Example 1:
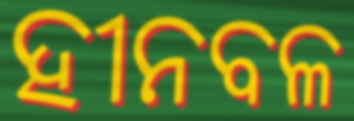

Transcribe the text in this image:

ହୀନବଳ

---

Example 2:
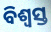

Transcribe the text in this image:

ବିଶ୍ବସ୍ତ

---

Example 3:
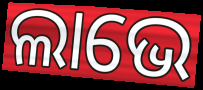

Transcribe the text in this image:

ଲାଭେ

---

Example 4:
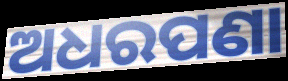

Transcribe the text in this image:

ଅଧରପଣା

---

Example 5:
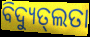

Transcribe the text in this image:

ବିଦ୍ୟୁତ୍‌ଲତା